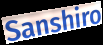
Sanshiro